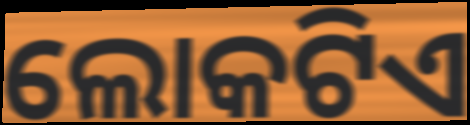
ଲୋକଟିଏ